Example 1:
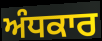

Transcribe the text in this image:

ਅੰਧਕਾਰ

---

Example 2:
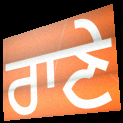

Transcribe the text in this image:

ਰਾਣੇ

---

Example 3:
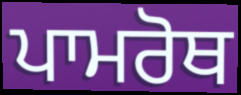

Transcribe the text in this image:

ਪਾਮਰੋਥ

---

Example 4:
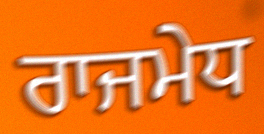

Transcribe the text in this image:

ਰਾਜਮੇਧ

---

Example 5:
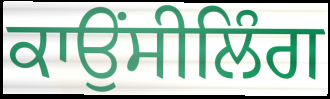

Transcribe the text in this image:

ਕਾਉਂਸੀਲਿੰਗ